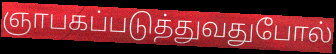
ஞாபகப்படுத்துவதுபோல்